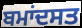
ਬਮਾਂਦਸਤ